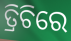
ତ୍ରିଚିରେ